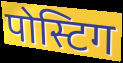
पोस्टिग